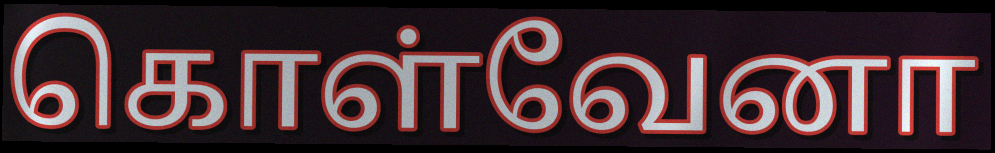
கொள்வேனா